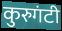
कुरुगंटी